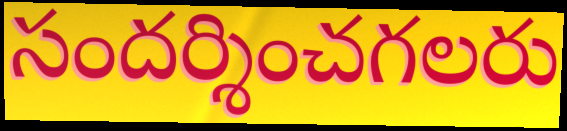
సందర్శించగలరు